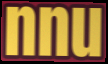
nnu